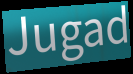
Jugad